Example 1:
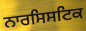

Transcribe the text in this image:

ਨਾਰਸਿਸਟਿਕ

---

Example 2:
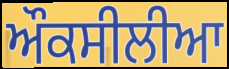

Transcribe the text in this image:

ਔਕਸੀਲੀਆ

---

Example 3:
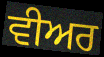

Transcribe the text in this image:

ਵੀਅਰ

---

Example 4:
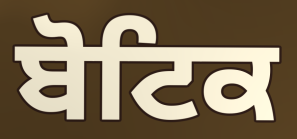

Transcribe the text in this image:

ਬੋਟਿਕ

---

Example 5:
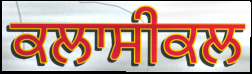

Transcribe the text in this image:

ਕਲਾਸੀਕਲ